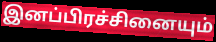
இனப்பிரச்சினையும்